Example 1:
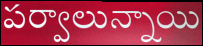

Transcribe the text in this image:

పర్వాలున్నాయి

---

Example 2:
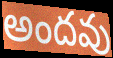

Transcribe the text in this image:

అందవు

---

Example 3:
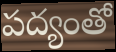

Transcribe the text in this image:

పద్యంతో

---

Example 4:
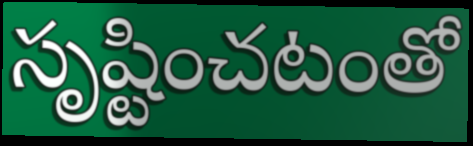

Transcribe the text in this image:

సృష్టించటంతో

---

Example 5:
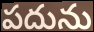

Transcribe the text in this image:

పదును